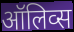
ऑलिव्स